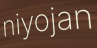
niyojan